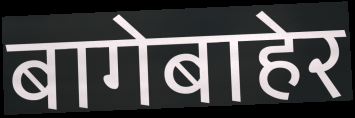
बागेबाहेर